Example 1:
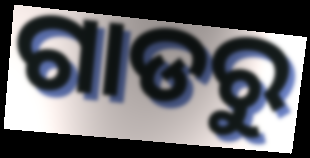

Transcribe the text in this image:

ଗାଡରୁ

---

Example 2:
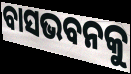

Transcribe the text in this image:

ବାସଭବନକୁ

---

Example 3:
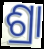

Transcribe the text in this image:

ଶ୍ରା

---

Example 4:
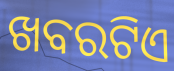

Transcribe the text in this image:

ଖବରଟିଏ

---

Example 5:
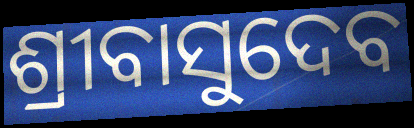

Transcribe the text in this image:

ଶ୍ରୀବାସୁଦେବ